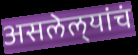
असलेल्यांचं